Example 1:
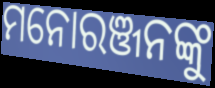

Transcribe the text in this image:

ମନୋରଞ୍ଜନଙ୍କୁ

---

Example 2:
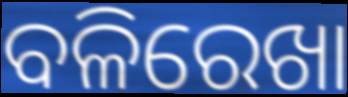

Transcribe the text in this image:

ବଳିରେଖା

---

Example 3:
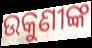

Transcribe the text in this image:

ଉକୁଣୀଙ୍କ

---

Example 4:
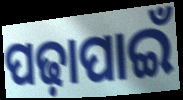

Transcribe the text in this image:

ପଢ଼ାପାଇଁ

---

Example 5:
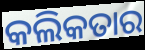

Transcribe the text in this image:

କଲିକତାର